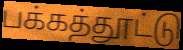
பக்கத்தூட்டு